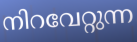
നിറവേറ്റുന്ന